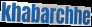
khabarchhe